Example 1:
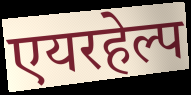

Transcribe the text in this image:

एयरहेल्प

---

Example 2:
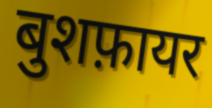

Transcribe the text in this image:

बुशफ़ायर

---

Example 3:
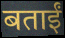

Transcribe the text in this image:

बताईं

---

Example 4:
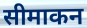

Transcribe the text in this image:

सीमाकन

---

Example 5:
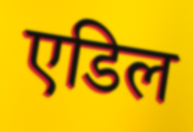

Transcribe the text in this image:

एडिल